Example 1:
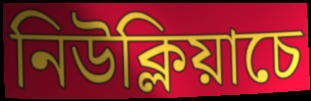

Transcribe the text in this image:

নিউক্লিয়াচে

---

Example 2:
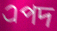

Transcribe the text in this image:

এপদ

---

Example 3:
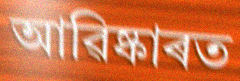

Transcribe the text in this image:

আৱিষ্কাৰত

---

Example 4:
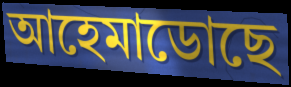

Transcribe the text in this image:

আহেমাডোছে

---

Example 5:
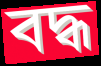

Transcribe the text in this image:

বদ্ধ